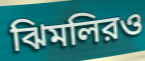
ঝিমলিরও